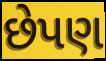
છેપણ